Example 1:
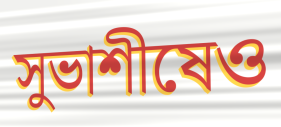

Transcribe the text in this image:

সুভাশীষেও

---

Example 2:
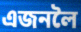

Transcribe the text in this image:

এজনলৈ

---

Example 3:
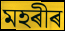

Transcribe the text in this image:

মহৰীৰ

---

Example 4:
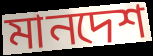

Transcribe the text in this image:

মানদেশ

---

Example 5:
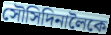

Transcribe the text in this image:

সৌসিদিনালৈকে